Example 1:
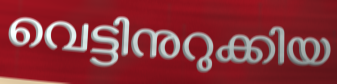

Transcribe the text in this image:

വെട്ടിനുറുക്കിയ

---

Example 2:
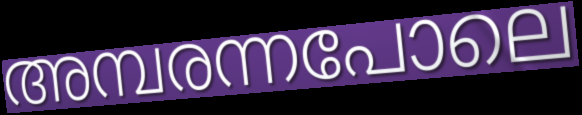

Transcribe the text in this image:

അമ്പരന്നപോലെ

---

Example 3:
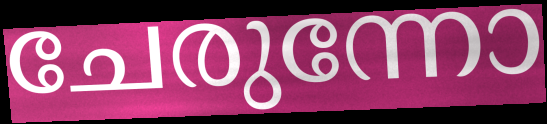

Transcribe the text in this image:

ചേരുന്നോ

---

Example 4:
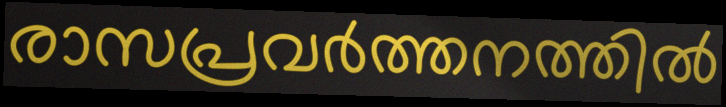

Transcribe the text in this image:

രാസപ്രവർത്തനത്തിൽ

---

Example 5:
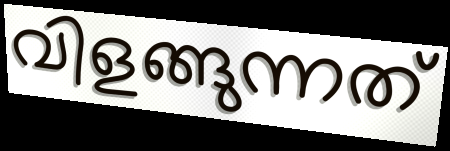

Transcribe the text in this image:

വിളങ്ങുന്നത്